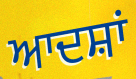
ਆਦਸ਼ਾਂ